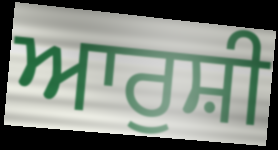
ਆਰੁਸ਼ੀ